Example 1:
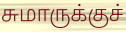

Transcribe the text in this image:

சுமாருக்குச்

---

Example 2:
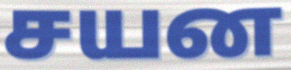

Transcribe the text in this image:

சயன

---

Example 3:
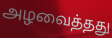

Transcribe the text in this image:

அழவைத்தது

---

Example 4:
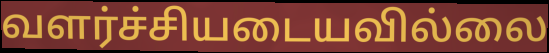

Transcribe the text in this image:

வளர்ச்சியடையவில்லை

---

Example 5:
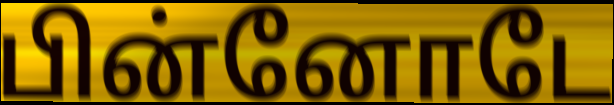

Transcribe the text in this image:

பின்னோடே